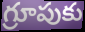
గ్రూపుకు